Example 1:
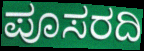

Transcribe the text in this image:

ಪೂಸರದಿ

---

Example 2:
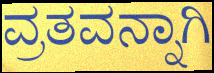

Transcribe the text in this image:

ವ್ರತವನ್ನಾಗಿ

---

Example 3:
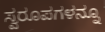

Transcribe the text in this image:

ಸ್ವರೂಪಗಳನ್ನೂ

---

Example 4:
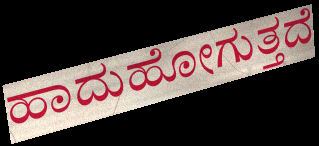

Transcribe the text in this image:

ಹಾದುಹೋಗುತ್ತದೆ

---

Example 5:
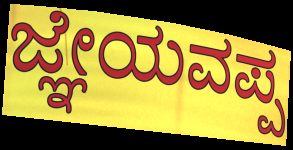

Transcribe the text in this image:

ಜ್ಞೇಯವಪ್ಪ